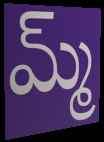
మ్మ్